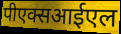
पीएक्सआईएल